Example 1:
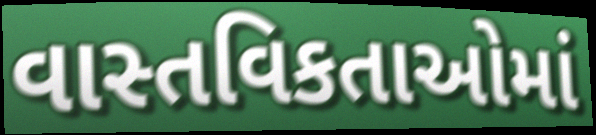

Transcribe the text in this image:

વાસ્તવિકતાઓમાં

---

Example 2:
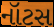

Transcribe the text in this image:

નૉટસ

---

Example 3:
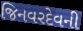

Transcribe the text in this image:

જિનવરદેવની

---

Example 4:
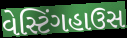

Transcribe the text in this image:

વેસ્ટિંગહાઉસ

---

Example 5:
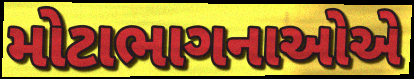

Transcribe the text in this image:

મોટાભાગનાઓએ